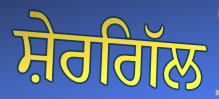
ਸ਼ੇਰਗਿੱਲ